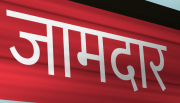
जामदार